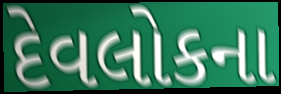
દેવલોકના